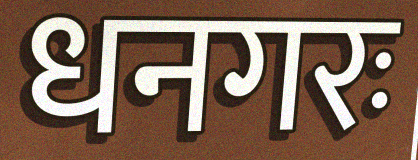
धनगरः